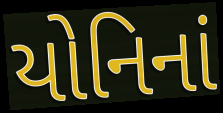
યોનિનાં